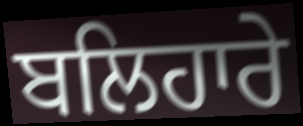
ਬਲਿਹਾਰੇ